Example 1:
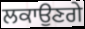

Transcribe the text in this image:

ਲਕਾਉਣਗੇ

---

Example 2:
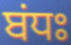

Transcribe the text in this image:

ਬਂਧਃ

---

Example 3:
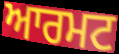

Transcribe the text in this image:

ਆਰਮਟ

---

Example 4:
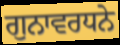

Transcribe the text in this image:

ਗੁਨਾਵਰਧਨੇ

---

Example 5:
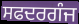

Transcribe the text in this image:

ਸਫਦਰਗੰਜ